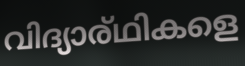
വിദ്യാര്ഥികളെ